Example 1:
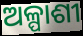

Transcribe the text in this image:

ଅଳ୍ପାଶୀ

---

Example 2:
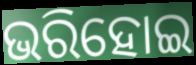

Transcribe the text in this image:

ଭରିହୋଇ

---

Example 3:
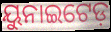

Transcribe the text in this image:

ୟୁନାଇଟେଡ଼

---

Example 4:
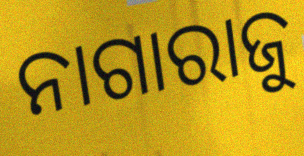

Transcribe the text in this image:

ନାଗାରାଜୁ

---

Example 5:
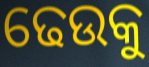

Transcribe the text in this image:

ଢେଉକୁ